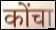
कोंचा